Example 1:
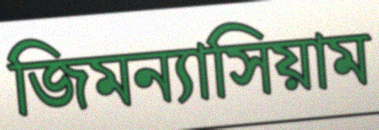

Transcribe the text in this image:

জিমন্যাসিয়াম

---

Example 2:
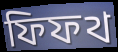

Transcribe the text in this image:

ফিফথ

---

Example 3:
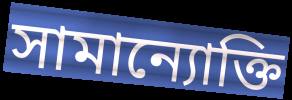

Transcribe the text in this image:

সামান্যোক্তি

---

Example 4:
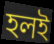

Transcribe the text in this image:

হলই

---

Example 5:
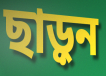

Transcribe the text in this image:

ছাড়ুন